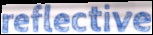
reflective